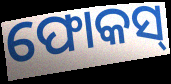
ଫୋକସ୍